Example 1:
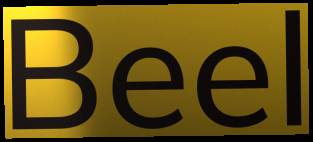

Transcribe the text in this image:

Beel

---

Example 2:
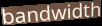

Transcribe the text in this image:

bandwidth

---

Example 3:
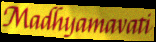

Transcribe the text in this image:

Madhyamavati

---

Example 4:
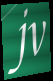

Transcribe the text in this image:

jv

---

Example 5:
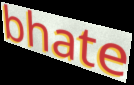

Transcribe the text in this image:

bhate